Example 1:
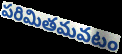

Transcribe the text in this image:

పరిమితమవటం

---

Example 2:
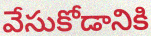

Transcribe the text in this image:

వేసుకోడానికి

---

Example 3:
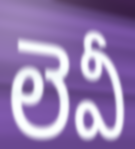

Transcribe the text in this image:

లెవీ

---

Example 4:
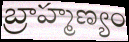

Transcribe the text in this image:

బ్రాహ్మణ్యం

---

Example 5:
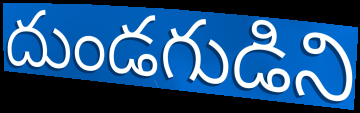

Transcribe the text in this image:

దుండగుడిని